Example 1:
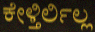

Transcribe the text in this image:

ಕೇಳ್ತಿರ್ಲಿಲ್ಲ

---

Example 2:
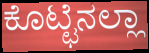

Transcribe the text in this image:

ಕೊಟ್ಟೆನಲ್ಲಾ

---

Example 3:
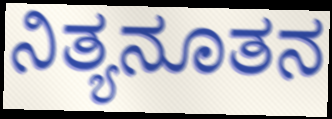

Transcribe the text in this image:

ನಿತ್ಯನೂತನ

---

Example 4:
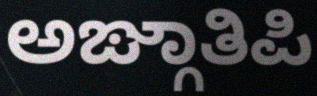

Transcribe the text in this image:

ಅಙ್ಗಾತಿಪಿ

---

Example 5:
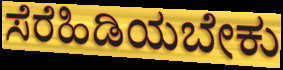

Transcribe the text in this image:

ಸೆರೆಹಿಡಿಯಬೇಕು